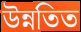
উন্নতিত